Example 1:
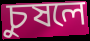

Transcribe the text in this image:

চুষলে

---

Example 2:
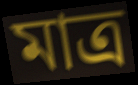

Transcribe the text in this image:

মাত্র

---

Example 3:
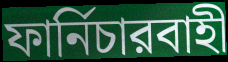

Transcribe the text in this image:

ফার্নিচারবাহী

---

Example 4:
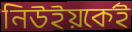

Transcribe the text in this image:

নিউইয়র্কেই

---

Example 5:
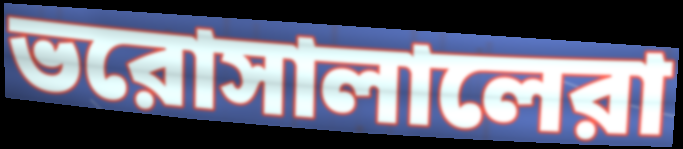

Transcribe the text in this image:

ভরোসালালেরা